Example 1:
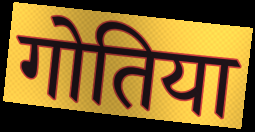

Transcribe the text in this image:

गोतिया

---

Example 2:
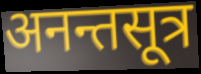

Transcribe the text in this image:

अनन्तसूत्र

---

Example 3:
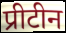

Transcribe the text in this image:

प्रीटीन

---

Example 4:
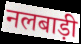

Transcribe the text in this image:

नलबाड़ी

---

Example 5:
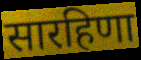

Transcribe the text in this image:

सारहिणा